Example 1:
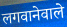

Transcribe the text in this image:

लगवानेवाले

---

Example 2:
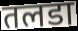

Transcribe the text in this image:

तलडा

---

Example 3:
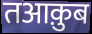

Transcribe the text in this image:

तआक़ुब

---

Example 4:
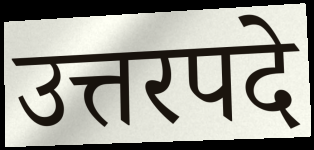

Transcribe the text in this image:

उत्तरपदे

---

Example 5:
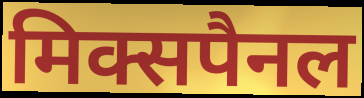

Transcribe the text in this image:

मिक्सपैनल